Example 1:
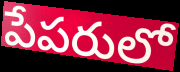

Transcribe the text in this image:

పేపరులో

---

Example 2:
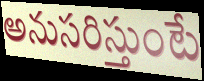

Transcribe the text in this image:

అనుసరిస్తుంటే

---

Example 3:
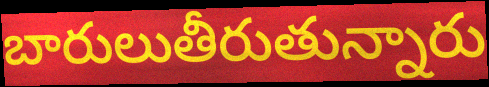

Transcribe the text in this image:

బారులుతీరుతున్నారు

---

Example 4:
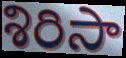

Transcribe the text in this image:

శిరిసా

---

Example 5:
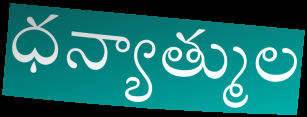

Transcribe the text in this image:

ధన్యాత్ముల